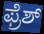
ಫ್ರೆಶ್